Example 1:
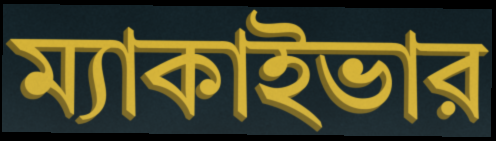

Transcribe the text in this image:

ম্যাকাইভার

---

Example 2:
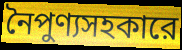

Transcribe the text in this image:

নৈপুণ্যসহকারে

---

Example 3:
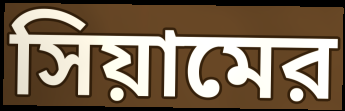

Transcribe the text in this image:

সিয়ামের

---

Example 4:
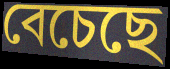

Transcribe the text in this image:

বেচেছে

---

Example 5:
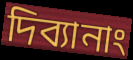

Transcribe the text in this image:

দিব্যানাং